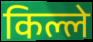
किल्ले